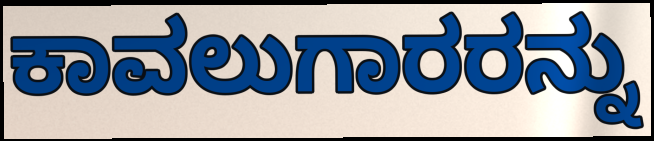
ಕಾವಲುಗಾರರನ್ನು